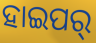
ହାଇପର୍